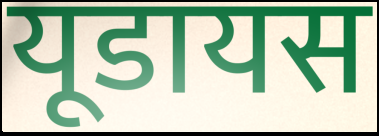
यूडायस